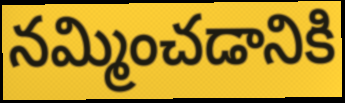
నమ్మించడానికి